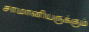
சாமானியருக்கும்